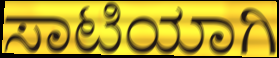
ಸಾಟಿಯಾಗಿ